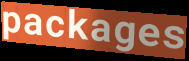
packages